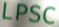
LPSC